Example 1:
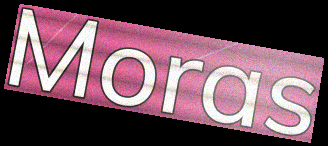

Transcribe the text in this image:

Moras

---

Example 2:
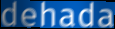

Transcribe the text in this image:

dehada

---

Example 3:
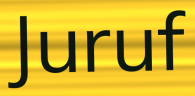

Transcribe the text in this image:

Juruf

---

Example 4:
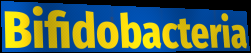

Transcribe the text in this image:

Bifidobacteria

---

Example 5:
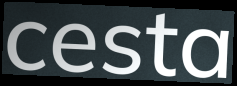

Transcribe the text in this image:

cesta